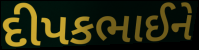
દીપકભાઈને